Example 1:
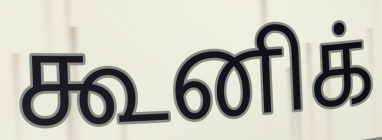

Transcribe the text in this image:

கூனிக்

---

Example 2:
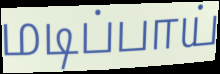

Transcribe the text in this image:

மடிப்பாய்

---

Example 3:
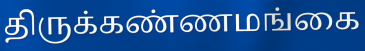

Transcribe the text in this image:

திருக்கண்ணமங்கை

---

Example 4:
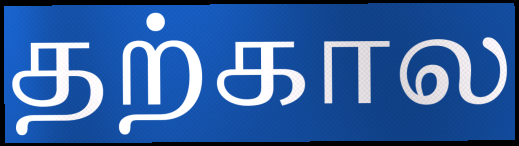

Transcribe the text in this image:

தற்கால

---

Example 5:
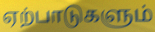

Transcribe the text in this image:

ஏற்பாடுகளும்